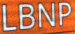
LBNP